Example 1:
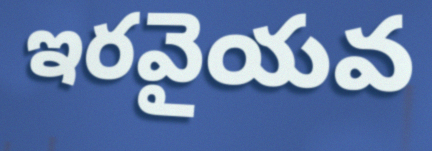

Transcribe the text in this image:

ఇరవైయవ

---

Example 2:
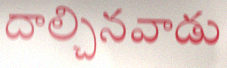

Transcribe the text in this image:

దాల్చినవాడు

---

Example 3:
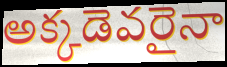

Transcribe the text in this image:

అక్కడెవరైనా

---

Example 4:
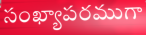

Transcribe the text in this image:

సంఖ్యాపరముగా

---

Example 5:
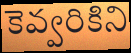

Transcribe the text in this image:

కెవ్వరికిని